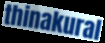
thinakural